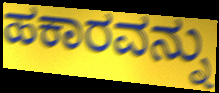
ಹಕಾರವನ್ನು